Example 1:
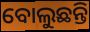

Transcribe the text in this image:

ବୋଲୁଛନ୍ତି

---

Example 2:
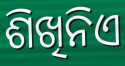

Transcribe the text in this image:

ଶିଖିନିଏ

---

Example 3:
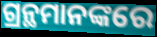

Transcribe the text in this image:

ଗ୍ରନ୍ଥମାନଙ୍କରେ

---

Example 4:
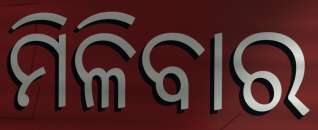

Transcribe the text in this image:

ମିଳିବାର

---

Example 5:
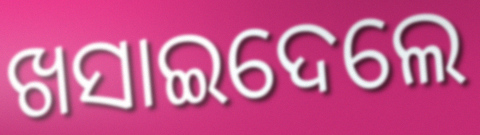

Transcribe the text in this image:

ଖସାଇଦେଲେ